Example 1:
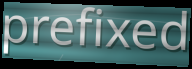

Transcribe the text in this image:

prefixed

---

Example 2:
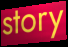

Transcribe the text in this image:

story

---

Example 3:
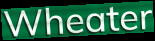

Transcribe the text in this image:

Wheater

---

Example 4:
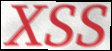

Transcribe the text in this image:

XSS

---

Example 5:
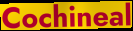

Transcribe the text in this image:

Cochineal